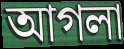
আগলা